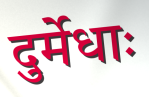
दुर्मेधाः